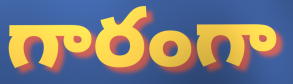
గారంగా